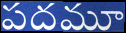
పదమూ